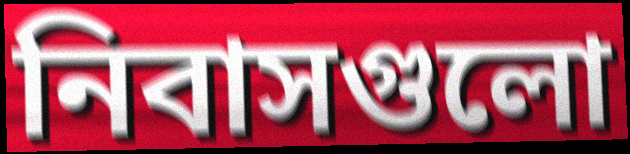
নিবাসগুলো